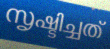
സൃഷ്ടിച്ചത്